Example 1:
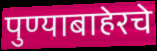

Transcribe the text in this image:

पुण्याबाहेरचे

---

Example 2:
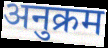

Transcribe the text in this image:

अनुक्रम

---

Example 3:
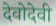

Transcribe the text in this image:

देवोदेवी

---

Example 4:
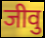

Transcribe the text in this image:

जीवु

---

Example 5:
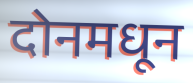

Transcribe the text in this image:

दोनमधून